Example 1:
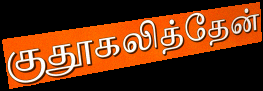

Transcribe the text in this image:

குதூகலித்தேன்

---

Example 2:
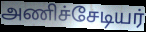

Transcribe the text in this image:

அணிச்சேடியர்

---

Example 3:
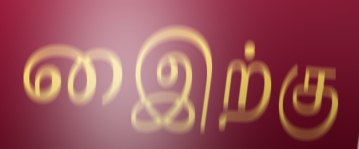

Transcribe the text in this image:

இைற்கு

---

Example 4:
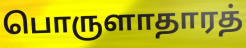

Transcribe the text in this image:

பொருளாதாரத்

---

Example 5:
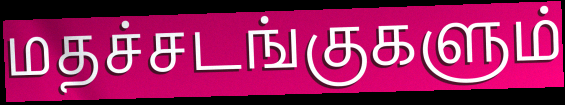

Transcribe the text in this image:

மதச்சடங்குகளும்